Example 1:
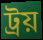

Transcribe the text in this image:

ট্ৰয়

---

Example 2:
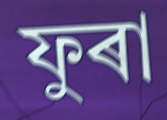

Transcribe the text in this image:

ফুৰা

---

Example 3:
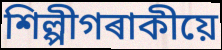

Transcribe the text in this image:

শিল্পীগৰাকীয়ে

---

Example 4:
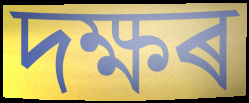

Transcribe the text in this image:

দক্ষৰ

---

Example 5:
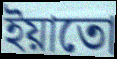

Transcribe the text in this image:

ইয়াতো